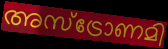
അസ്ട്രോണമി